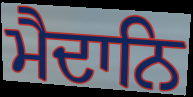
ਮੈਦਾਨਿ